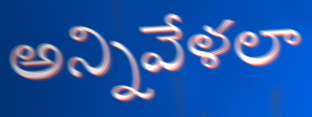
అన్నివేళలా